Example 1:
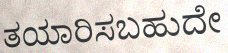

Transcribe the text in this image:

ತಯಾರಿಸಬಹುದೇ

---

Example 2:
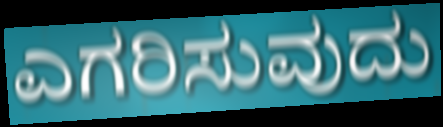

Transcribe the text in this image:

ಎಗರಿಸುವುದು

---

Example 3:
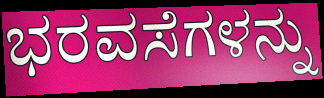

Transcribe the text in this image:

ಭರವಸೆಗಳನ್ನು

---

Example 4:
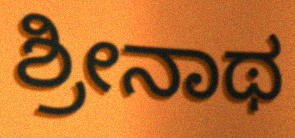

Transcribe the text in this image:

ಶ್ರೀನಾಥ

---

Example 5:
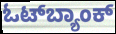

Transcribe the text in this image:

ಓಟ್‌ಬ್ಯಾಂಕ್